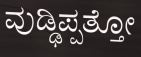
ವುಡ್ಢಿಪ್ಪತ್ತೋ